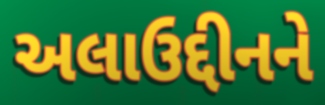
અલાઉદ્દીનને